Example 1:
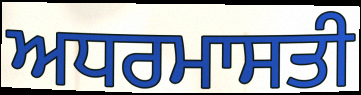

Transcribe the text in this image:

ਅਧਰਮਾਸਤੀ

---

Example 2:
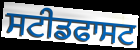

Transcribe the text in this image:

ਸਟੀਡਫਾਸਟ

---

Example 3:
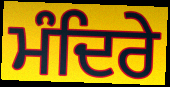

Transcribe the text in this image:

ਮੰਦਿਰੇ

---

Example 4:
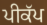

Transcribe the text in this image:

ਪੀਕੱਪ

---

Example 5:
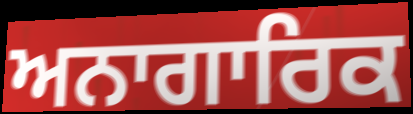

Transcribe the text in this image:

ਅਨਾਗਾਰਿਕ